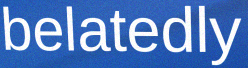
belatedly